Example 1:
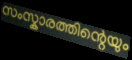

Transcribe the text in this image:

സംസ്കാരത്തിന്റെയും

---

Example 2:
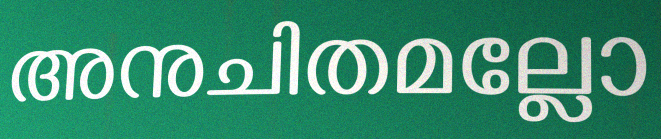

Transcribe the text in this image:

അനുചിതമല്ലോ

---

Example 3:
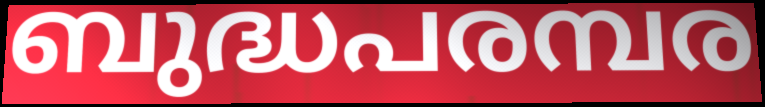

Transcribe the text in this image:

ബുദ്ധപരമ്പര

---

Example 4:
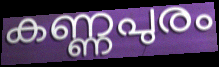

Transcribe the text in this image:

കണ്ണപുരം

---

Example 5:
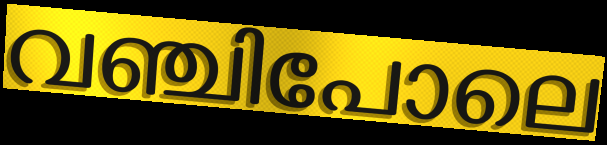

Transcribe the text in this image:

വഞ്ചിപോലെ